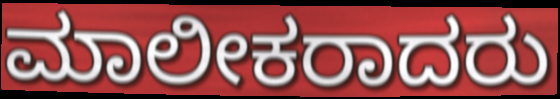
ಮಾಲೀಕರಾದರು